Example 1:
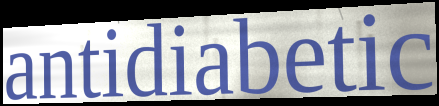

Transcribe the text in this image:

antidiabetic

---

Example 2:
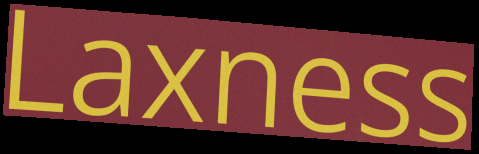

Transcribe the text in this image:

Laxness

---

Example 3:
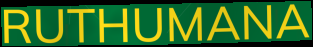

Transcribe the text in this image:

RUTHUMANA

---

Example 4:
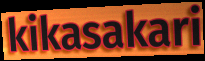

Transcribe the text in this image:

kikasakari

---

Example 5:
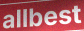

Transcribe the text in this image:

allbest